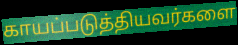
காயப்படுத்தியவர்களை